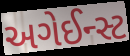
અગેઈન્સ્ટ